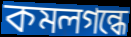
কমলগন্ধে